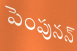
పెంపునన్